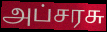
அப்சரசு